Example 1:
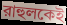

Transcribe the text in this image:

রাহুলকেই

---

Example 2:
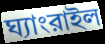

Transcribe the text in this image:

ঘ্যাংরাইল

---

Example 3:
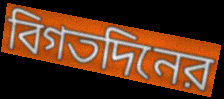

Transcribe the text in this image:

বিগতদিনের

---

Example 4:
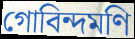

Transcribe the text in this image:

গোবিন্দমণি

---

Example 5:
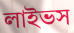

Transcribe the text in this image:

লাইভস